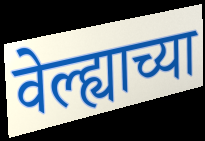
वेल्ह्याच्या